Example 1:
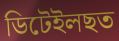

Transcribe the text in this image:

ডিটেইলছত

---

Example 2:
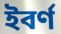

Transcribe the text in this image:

ইবৰ্ণ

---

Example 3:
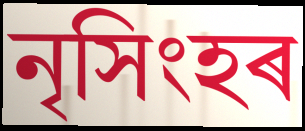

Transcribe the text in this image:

নৃসিংহৰ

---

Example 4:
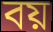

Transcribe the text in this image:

বয়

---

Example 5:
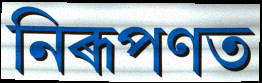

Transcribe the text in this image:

নিৰূপণত